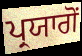
ਪ੍ਰਯਾਗੋਂ